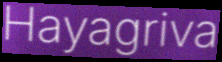
Hayagriva